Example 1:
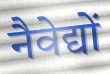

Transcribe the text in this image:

नैवेद्यों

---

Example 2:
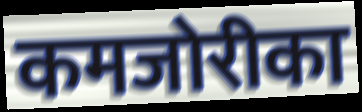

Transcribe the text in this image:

कमजोरीका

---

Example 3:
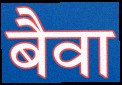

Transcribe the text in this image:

बैवा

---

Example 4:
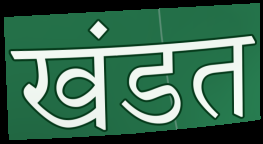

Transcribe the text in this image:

खंडत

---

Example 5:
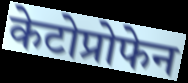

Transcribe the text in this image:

केटोप्रोफेन